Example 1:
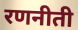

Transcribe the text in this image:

रणनीती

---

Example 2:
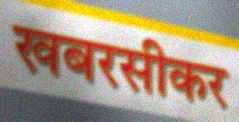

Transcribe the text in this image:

खबरसीकर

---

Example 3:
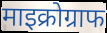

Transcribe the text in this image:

माइक्रोग्राफ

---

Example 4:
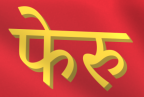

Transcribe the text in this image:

फेरु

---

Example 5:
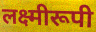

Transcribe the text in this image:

लक्ष्मीरूपी